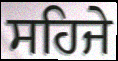
ਸਹਿਜੇ